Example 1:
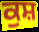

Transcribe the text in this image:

ਕੁਸ਼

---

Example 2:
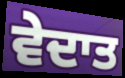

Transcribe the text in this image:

ਵੇਦਾਤ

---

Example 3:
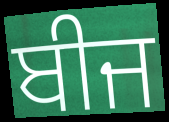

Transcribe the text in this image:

ਬੀਜ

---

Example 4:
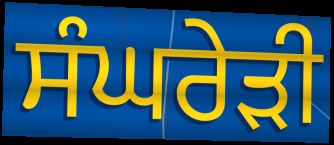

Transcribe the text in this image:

ਸੰਘਰੇੜੀ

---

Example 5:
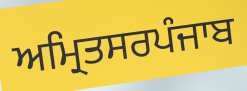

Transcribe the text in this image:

ਅਮ੍ਰਿਤਸਰਪੰਜਾਬ